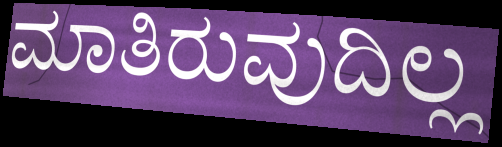
ಮಾತಿರುವುದಿಲ್ಲ